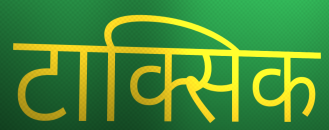
टाक्सिक